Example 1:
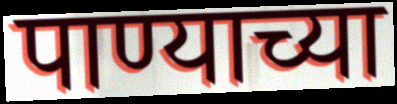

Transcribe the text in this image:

पाण्याच्या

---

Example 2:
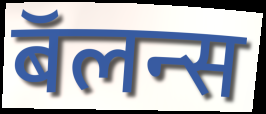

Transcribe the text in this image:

बॅलन्स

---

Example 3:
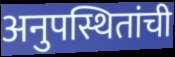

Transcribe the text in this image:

अनुपस्थितांची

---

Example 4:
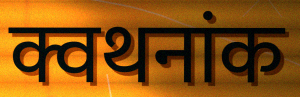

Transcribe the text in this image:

क्वथनांक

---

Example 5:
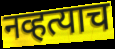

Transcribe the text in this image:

नव्हत्याच